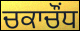
ਚਕਾਚੌਂਧ